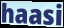
haasi